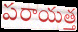
పరాయత్త